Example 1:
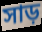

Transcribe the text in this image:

সাড়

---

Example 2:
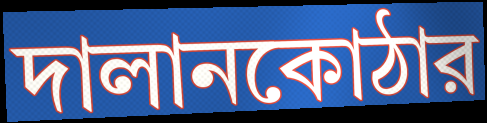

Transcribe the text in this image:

দালানকোঠার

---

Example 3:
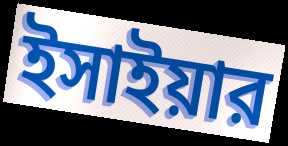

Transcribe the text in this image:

ইসাইয়ার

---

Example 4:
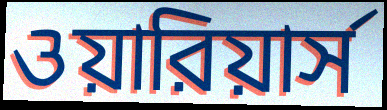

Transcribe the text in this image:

ওয়ারিয়ার্স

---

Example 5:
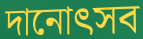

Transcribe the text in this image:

দানোৎসব